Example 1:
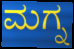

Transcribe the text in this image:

ಮಗ್ನ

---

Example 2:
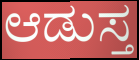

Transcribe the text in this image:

ಆಡುಸ್ತ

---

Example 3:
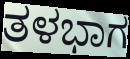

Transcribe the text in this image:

ತಳಭಾಗ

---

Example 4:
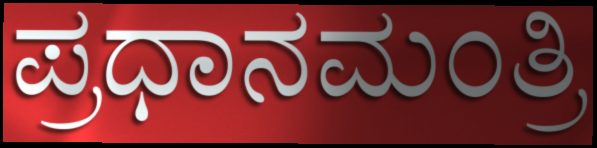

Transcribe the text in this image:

ಪ್ರಧಾನಮಂತ್ರಿ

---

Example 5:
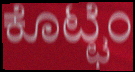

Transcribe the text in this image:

ಕೊಟ್ಟೆಂ